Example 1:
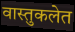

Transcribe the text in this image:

वास्तुकलेत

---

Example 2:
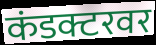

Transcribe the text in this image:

कंडक्टरवर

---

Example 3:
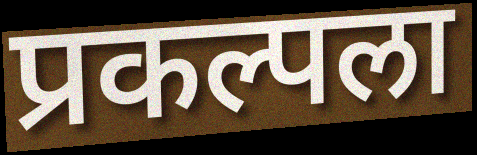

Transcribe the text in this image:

प्रकल्पला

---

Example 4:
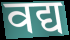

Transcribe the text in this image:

वद्य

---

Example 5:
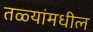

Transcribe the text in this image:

तळ्यांमधील